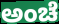
ಅಂಚೆ